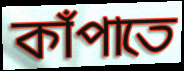
কাঁপাতে